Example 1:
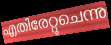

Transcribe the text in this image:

എതിരേറ്റുചെന്നു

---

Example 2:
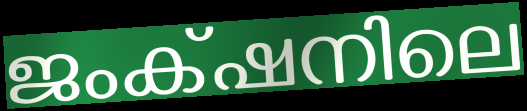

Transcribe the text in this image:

ജംക്‌ഷനിലെ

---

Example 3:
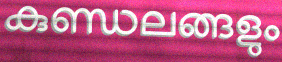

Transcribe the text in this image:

കുണ്ഡലങ്ങളും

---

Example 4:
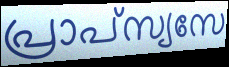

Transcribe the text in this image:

പ്രാപ്സ്യസേ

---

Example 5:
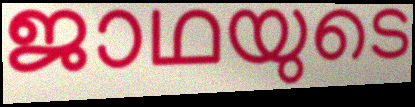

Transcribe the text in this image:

ജാഥയുടെ